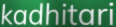
kadhitari